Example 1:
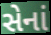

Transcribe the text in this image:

સેનાં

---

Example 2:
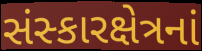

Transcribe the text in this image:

સંસ્કારક્ષેત્રનાં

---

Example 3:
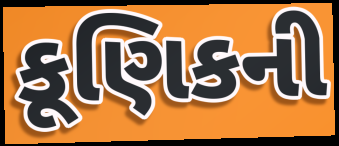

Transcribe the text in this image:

કૂણિકની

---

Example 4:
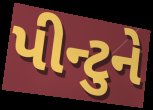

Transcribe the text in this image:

પીન્ટુને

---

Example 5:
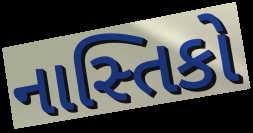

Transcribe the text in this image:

નાસ્તિકો